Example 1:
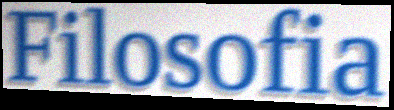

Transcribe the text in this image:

Filosofia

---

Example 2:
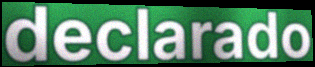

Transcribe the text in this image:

declarado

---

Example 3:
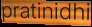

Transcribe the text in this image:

pratinidhi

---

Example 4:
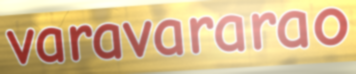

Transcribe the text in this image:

varavararao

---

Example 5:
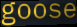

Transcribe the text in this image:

goose